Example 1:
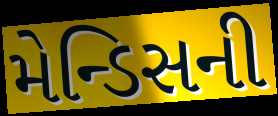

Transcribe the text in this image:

મેન્ડિસની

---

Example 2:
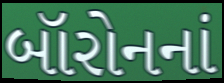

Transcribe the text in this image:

બૉરોનનાં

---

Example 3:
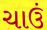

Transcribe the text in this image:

ચાઉં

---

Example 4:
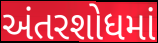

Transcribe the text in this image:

અંતરશોધમાં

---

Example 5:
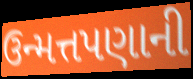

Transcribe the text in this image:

ઉન્મત્તપણાની